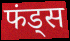
फंड्स